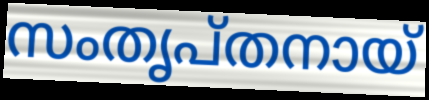
സംതൃപ്തനായ്